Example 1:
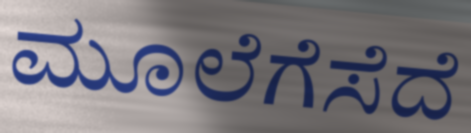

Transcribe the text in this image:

ಮೂಲೆಗೆಸೆದೆ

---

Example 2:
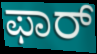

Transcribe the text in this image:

ಫಾರ್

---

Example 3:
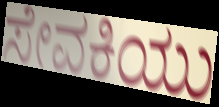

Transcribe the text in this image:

ಸೇವಕಿಯು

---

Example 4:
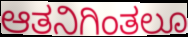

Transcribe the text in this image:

ಆತನಿಗಿಂತಲೂ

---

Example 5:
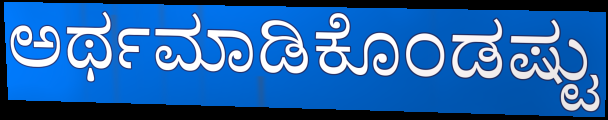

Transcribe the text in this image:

ಅರ್ಥಮಾಡಿಕೊಂಡಷ್ಟು